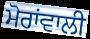
ਮੋਰਾਂਵਾਲੀ